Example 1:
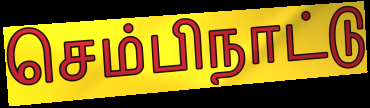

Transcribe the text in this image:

செம்பிநாட்டு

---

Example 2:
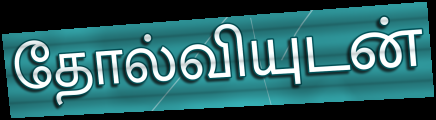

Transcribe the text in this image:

தோல்வியுடன்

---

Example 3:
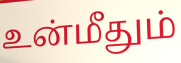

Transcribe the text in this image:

உன்மீதும்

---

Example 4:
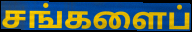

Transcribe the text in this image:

சங்களைப்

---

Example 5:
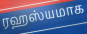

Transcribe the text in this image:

ரஹஸ்யமாக